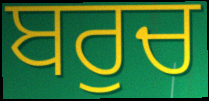
ਬਰੁਚ